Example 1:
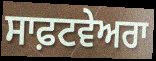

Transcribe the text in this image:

ਸਾਫ਼ਟਵੇਅਰਾ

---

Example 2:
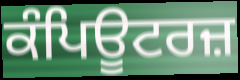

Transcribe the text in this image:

ਕੰਪਿਊਟਰਜ਼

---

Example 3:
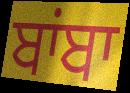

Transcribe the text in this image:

ਬਾਂਬਾ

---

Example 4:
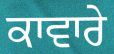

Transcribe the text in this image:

ਕਾਵਾਰੇ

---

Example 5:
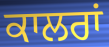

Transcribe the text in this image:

ਕਾਲਰਾਂ